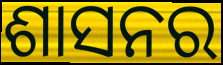
ଶାସନର